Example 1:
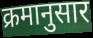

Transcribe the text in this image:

क्रमानुसार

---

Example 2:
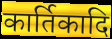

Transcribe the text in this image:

कार्तिकादि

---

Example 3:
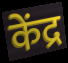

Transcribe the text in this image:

केंद्र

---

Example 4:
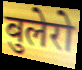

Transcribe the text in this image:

बुलेरो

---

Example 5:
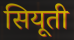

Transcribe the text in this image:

सियूती